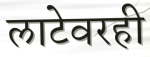
लाटेवरही